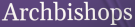
Archbishops